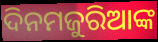
ଦିନମଜୁରିଆଙ୍କ